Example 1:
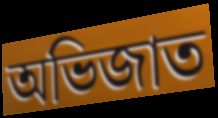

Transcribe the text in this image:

অভিজাত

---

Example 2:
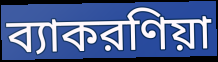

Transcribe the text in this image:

ব্যাকরণিয়া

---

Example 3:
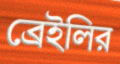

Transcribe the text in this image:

ব্রেইলির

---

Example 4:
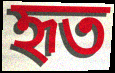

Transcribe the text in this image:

হৃত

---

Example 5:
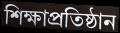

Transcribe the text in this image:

শিক্ষাপ্রতিষ্ঠান